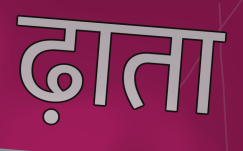
ढ़ाता